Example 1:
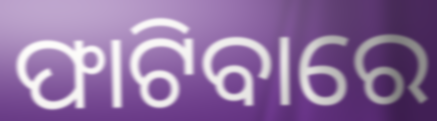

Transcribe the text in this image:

ଫାଟିବାରେ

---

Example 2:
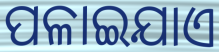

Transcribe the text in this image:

ପଳାଇଯାଏ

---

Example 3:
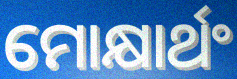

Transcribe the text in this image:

ମୋକ୍ଷାର୍ଥଂ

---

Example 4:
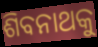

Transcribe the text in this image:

ଶିବନାଥକୁ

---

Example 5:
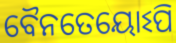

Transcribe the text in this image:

ବୈନତେୟୋଽପି